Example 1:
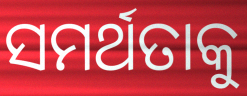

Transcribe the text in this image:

ସମର୍ଥତାକୁ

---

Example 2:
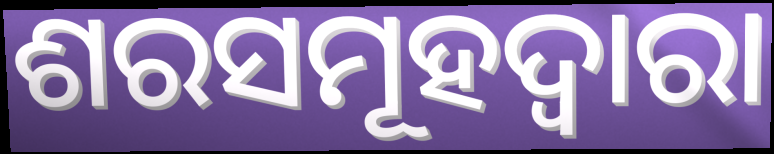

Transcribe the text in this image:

ଶରସମୂହଦ୍ୱାରା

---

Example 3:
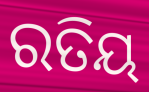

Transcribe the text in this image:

ରତିୟ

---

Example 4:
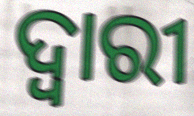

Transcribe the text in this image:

ଦ୍ଵାରୀ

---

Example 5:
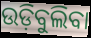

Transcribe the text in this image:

ଉଡ଼ିବୁଲିବା